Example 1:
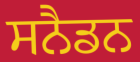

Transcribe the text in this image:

ਸਨੈਡਨ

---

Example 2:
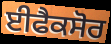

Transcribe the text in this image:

ਈਫੈਕਸੋਰ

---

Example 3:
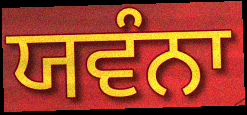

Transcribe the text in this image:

ਯਵੰਨਾ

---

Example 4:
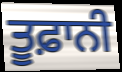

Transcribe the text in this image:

ਤੂਫ਼ਾਨੀ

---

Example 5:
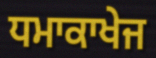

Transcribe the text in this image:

ਧਮਾਕਾਖੇਜ